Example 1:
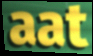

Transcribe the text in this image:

aat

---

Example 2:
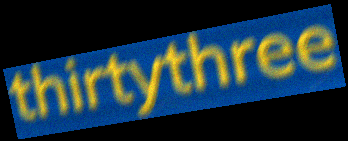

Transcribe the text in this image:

thirtythree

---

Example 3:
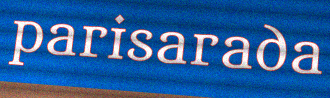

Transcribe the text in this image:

parisarada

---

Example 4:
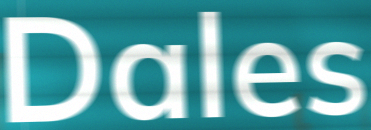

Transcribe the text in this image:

Dales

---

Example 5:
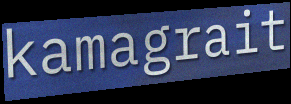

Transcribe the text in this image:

kamagrait